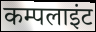
कम्पलाइंट